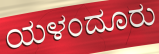
ಯಳಂದೂರು